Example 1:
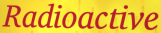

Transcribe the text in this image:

Radioactive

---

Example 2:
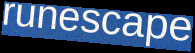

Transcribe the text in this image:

runescape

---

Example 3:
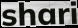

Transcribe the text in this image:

shari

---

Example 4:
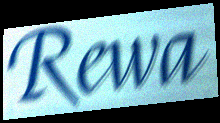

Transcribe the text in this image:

Rewa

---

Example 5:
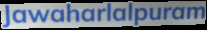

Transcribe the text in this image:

Jawaharlalpuram